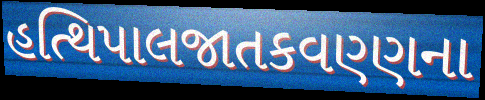
હત્થિપાલજાતકવણ્ણના